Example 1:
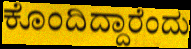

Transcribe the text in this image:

ಕೊಂದಿದ್ದಾರೆಂದು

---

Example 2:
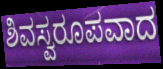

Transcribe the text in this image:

ಶಿವಸ್ವರೂಪವಾದ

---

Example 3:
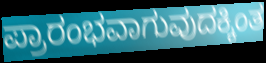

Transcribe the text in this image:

ಪ್ರಾರಂಭವಾಗುವುದಕ್ಕಿಂತ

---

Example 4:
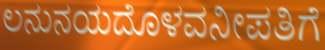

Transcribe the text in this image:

ಲನುನಯದೊಳವನೀಪತಿಗೆ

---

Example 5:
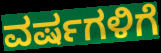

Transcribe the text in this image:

ವರ್ಷಗಳಿಗೆ